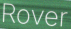
Rover